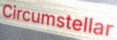
Circumstellar